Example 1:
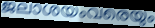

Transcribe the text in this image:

ജലാശയംവരെയും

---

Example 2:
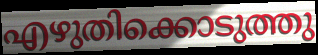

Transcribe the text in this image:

എഴുതിക്കൊടുത്തു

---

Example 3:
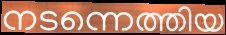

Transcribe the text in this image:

നടന്നെത്തിയ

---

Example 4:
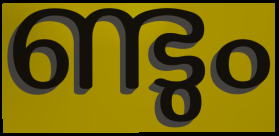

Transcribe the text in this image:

ണ്ടും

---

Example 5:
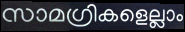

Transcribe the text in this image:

സാമഗ്രികളെല്ലാം